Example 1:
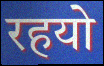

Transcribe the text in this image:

रहयो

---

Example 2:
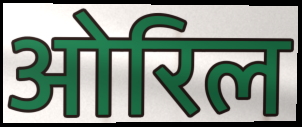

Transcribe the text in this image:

ओरिल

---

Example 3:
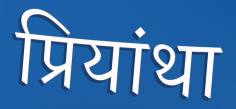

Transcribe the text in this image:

प्रियांथा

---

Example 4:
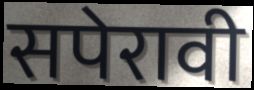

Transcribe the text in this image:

सपेरावी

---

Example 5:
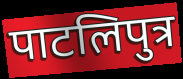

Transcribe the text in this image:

पाटलिपुत्र